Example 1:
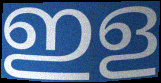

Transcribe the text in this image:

ഇള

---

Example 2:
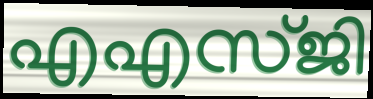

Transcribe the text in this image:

എഎസ്ജി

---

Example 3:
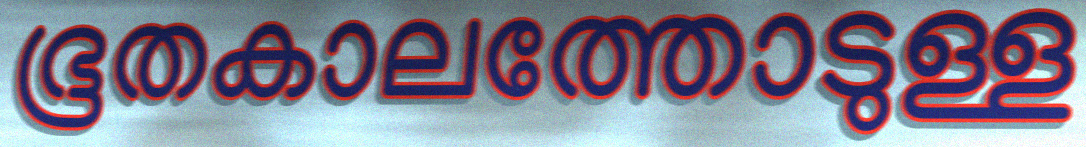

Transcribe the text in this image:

ഭൂതകാലത്തോടുള്ള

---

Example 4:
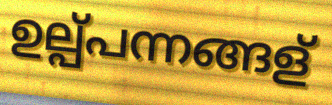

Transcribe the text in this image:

ഉല്പ്പന്നങ്ങള്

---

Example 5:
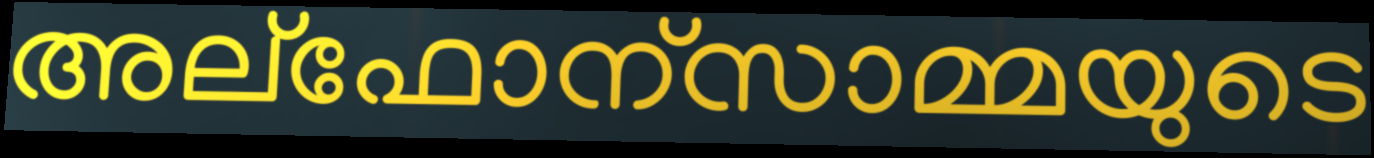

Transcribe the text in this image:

അല്ഫോന്സാമ്മയുടെ